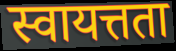
स्वायत्तता